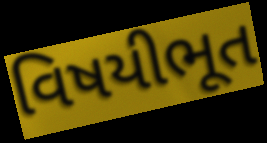
વિષયીભૂત